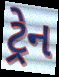
ટ્રેન